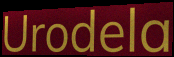
Urodela